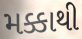
મક્કાથી